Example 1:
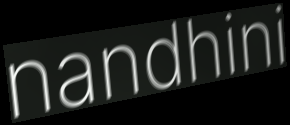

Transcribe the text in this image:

nandhini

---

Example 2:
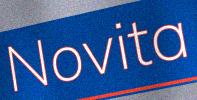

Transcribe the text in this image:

Novita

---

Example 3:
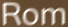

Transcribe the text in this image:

Rom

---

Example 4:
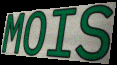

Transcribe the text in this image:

MOIS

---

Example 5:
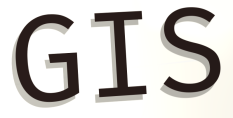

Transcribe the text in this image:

GIS